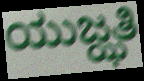
ಯುಜ್ಝತಿ